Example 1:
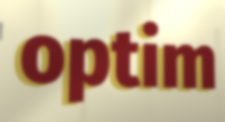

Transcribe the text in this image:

optim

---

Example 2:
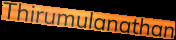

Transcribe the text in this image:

Thirumulanathan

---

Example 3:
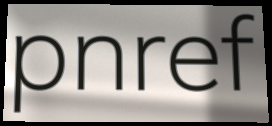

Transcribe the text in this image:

pnref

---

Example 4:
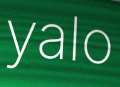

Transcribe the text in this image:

yalo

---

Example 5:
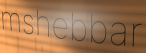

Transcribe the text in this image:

mshebbar